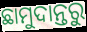
ଛାମୁଦାନ୍ତରୁ